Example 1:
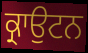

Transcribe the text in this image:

ਕ੍ਰਾਉਟਨ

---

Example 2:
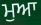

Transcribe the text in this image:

ਮੁਆ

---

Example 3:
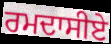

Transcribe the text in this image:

ਰਮਦਾਸੀਏ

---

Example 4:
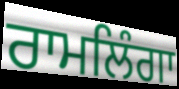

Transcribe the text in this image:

ਰਾਮਲਿੰਗਾ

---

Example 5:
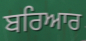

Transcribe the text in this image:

ਬਰਿਆਰ